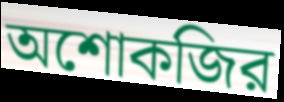
অশোকজির